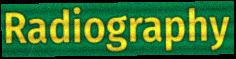
Radiography